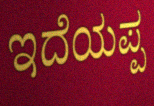
ಇದೆಯಪ್ಪ